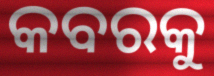
କବରକୁ